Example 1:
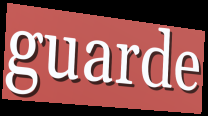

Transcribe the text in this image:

guarde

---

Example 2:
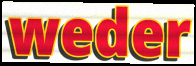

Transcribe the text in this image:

weder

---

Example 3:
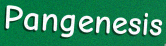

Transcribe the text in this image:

Pangenesis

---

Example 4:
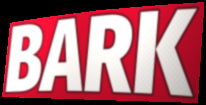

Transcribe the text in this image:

BARK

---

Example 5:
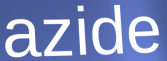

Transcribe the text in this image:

azide